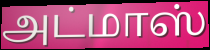
அட்மாஸ்